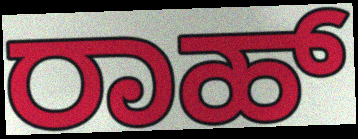
ರಾಹ್